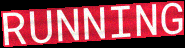
RUNNING